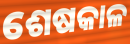
ଶେଷକାଳ